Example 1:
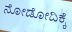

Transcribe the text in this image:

ನೋಡೋದಿಕ್ಕೆ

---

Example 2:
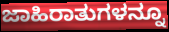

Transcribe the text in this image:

ಜಾಹಿರಾತುಗಳನ್ನೂ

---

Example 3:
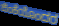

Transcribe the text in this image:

ಜಿಂಕೆಯೊಂದರ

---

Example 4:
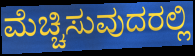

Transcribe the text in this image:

ಮೆಚ್ಚಿಸುವುದರಲ್ಲಿ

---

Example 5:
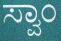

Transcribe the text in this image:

ಸ್ವಾಂ